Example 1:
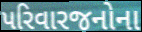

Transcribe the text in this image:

પરિવારજનોના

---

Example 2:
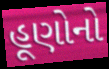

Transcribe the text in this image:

હૂણોનો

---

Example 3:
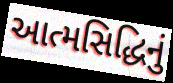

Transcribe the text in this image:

આત્મસિદ્ધિનું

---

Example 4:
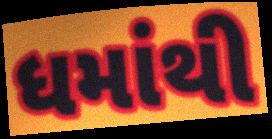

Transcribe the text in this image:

ધમાંથી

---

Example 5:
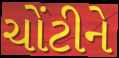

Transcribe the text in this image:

ચોંટીને